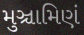
મુઞ્ચામિણં